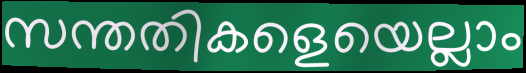
സന്തതികളെയെല്ലാം